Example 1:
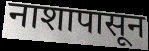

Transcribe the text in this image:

नाशापासून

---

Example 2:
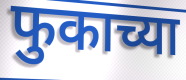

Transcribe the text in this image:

फुकाच्या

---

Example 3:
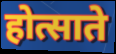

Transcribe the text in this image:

होत्साते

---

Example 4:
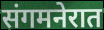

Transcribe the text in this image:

संगमनेरात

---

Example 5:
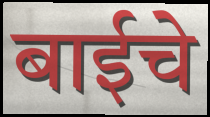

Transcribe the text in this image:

बाईचे